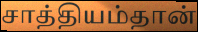
சாத்தியம்தான்